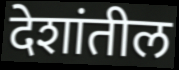
देशांतील